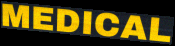
MEDICAL